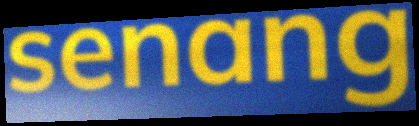
senang